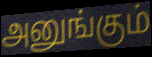
அனுங்கும்